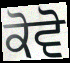
ਕੋਵੋ